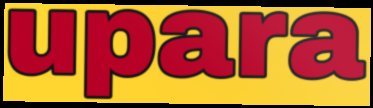
upara